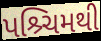
પશ્ર્ચિમથી